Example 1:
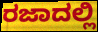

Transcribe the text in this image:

ರಜಾದಲ್ಲಿ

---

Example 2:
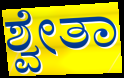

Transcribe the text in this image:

ಶ್ವೇತಾ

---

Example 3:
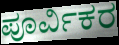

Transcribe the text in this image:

ಪೂರ್ವಿಕರ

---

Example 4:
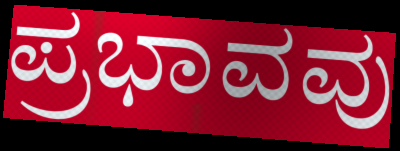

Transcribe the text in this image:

ಪ್ರಭಾವವು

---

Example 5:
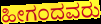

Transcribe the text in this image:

ಹೀಗಂದವರು